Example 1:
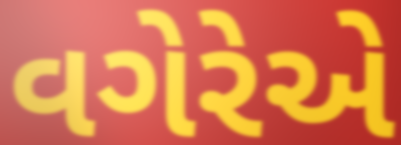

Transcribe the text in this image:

વગેરેએ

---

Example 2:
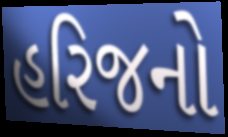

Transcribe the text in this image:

હરિજનો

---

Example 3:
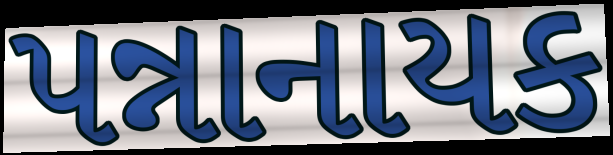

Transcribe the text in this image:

પન્નાનાયક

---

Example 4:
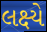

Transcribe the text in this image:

લક્ષ્યે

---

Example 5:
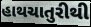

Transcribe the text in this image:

હાથચાતુરીથી